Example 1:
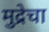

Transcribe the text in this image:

मुद्रेचा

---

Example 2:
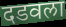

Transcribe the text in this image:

दडवला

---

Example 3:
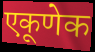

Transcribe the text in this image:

एकूणेक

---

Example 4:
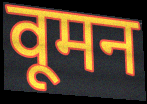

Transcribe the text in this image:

वूमन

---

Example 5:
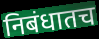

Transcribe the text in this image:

निबंधातच